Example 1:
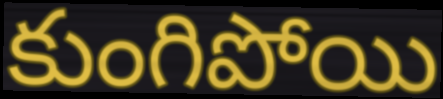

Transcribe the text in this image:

కుంగిపోయి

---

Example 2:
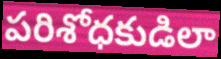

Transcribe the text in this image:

పరిశోధకుడిలా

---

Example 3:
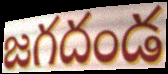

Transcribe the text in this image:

జగదండ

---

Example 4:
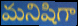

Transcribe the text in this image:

మనిషిగా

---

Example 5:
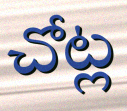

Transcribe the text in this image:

చోట్ల